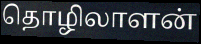
தொழிலாளன்